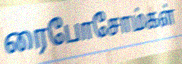
ரைபோசோம்கள்